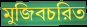
মুজিবচরিত